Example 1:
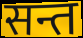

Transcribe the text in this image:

सन्त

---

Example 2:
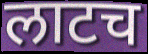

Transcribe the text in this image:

लाटच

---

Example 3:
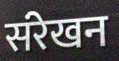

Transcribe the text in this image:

संरेखन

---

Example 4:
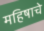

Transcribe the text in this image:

महिषाचे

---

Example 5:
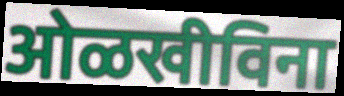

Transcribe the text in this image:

ओळखीविना